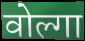
वोल्गा